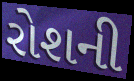
રોશની